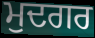
ਮੁਦਗਰ